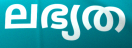
ലഭ്യത